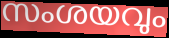
സംശയവും